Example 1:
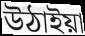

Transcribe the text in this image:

উঠাইয়া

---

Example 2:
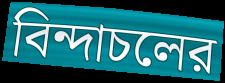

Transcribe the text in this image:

বিন্দাচলের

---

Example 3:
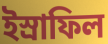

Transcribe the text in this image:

ইস্রাফিল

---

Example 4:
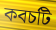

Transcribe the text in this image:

কবচটি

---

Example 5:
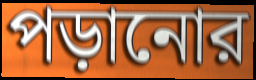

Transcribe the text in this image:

পড়ানোর